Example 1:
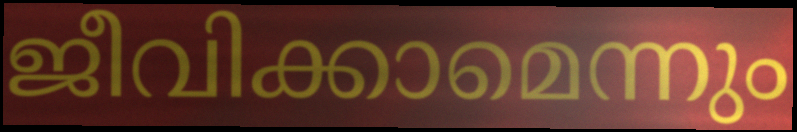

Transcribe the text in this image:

ജീവിക്കാമെന്നും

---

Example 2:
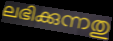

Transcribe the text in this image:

ലഭിക്കുന്നതു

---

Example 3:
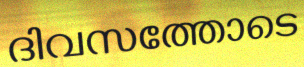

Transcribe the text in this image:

ദിവസത്തോടെ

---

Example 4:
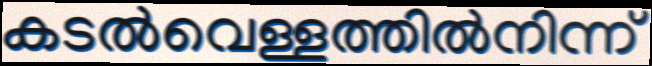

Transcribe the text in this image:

കടൽവെള്ളത്തിൽനിന്ന്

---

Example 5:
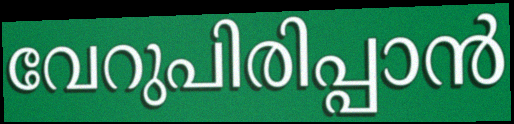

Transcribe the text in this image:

വേറുപിരിപ്പാൻ